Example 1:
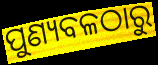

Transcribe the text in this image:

ପୁଣ୍ୟବଳଠାରୁ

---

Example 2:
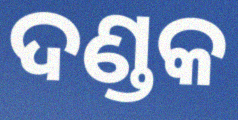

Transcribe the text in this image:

ଦଣ୍ଡକ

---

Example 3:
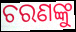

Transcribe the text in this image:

ଚରଣଙ୍କୁ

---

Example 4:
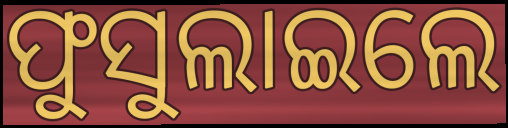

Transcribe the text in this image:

ଫୁସୁଲାଇଲେ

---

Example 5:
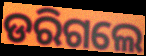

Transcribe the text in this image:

ଡରିଗଲେ